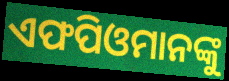
ଏଫପିଓମାନଙ୍କୁ